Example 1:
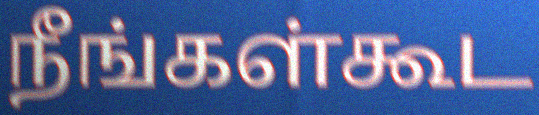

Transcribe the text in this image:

நீங்கள்கூட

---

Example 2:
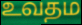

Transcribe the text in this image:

உவதம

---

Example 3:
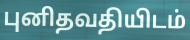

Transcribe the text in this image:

புனிதவதியிடம்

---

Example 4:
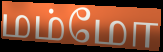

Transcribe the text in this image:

மம்மோ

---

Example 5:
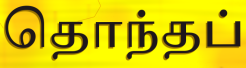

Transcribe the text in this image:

தொந்தப்